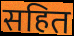
सहित